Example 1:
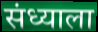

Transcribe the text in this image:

संध्याला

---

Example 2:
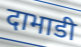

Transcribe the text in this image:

दाभाडी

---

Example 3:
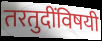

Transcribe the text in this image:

तरतुदींविषयी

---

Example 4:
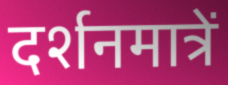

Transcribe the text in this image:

दर्शनमात्रें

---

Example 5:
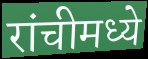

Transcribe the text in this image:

रांचीमध्ये